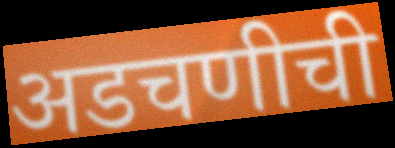
अडचणीची